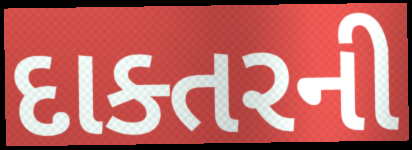
દાક્તરની